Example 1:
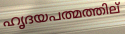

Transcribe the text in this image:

ഹൃദയപത്മത്തില്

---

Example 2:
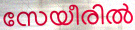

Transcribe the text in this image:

സേയീരിൽ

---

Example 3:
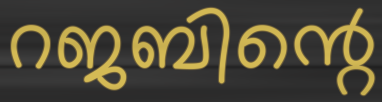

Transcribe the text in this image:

റജബിന്റെ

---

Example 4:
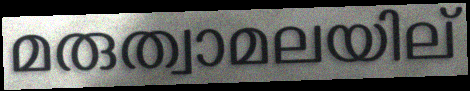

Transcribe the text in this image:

മരുത്വാമലയില്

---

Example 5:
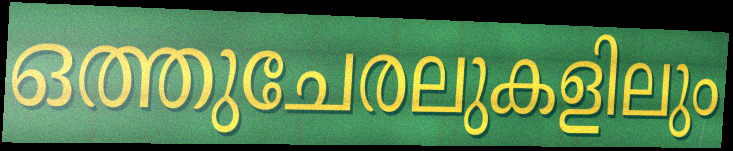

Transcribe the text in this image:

ഒത്തുചേരലുകളിലും